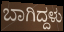
ಬಾಗಿದ್ದಳು